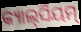
କ୍ୟାଲ୍‌ସିୟମ୍